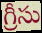
గ్రీసు